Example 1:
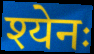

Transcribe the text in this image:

श्येनः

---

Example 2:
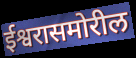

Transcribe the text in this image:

ईश्वरासमोरील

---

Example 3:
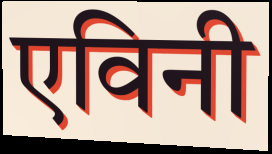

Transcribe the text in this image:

एविनी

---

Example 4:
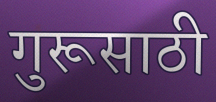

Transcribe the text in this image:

गुरूसाठी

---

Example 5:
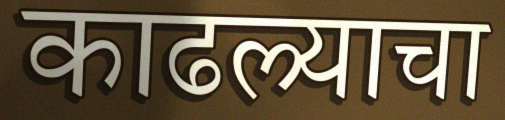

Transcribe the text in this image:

काढल्याचा